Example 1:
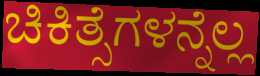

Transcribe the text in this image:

ಚಿಕಿತ್ಸೆಗಳನ್ನೆಲ್ಲ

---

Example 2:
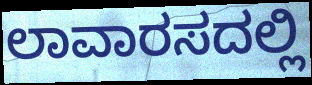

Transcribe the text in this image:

ಲಾವಾರಸದಲ್ಲಿ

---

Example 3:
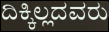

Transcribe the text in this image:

ದಿಕ್ಕಿಲ್ಲದವರು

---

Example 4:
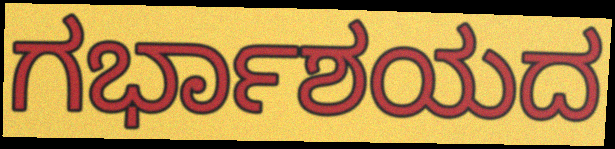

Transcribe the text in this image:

ಗರ್ಭಾಶಯದ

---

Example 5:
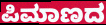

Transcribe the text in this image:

ಪಿಮಾಣದ